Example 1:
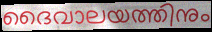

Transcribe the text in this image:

ദൈവാലയത്തിനും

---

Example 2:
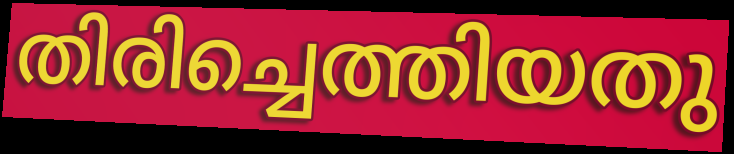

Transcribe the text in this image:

തിരിച്ചെത്തിയതു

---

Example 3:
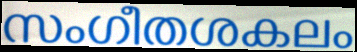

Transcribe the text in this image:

സംഗീതശകലം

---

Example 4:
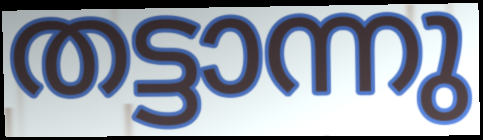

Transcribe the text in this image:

തട്ടാന്നു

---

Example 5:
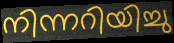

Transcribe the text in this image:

നിന്നറിയിച്ചു